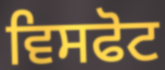
ਵਿਸਫੋਟ